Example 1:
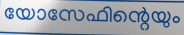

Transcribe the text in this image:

യോസേഫിന്റെയും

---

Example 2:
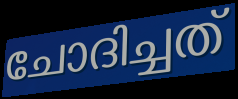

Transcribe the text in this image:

ചോദിച്ചത്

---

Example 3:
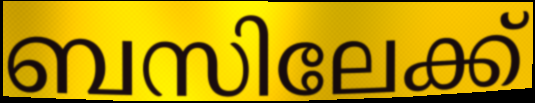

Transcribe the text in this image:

ബസിലേക്ക്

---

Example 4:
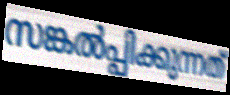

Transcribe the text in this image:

സങ്കൽപ്പിക്കുന്നത്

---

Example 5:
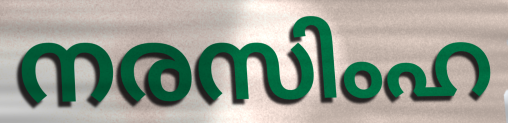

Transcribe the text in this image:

നരസിംഹ